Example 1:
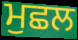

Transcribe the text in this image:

ਮੁਛਲ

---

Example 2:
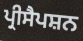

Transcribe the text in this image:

ਪ੍ਰੀਸੈਪਸ਼ਨ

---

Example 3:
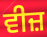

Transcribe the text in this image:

ਵੀਜ਼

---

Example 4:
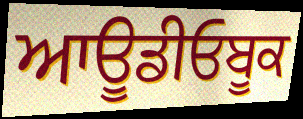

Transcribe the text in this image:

ਆਊਡੀਓਬੂਕ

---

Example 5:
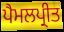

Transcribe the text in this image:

ਪੈਮਲਪ੍ਰੀਤ